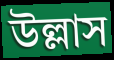
উল্লাস